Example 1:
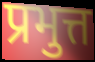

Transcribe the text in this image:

प्रभुत्त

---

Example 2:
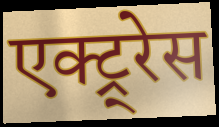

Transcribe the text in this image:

एक्ट्र्रेस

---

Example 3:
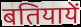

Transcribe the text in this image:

बतियायें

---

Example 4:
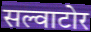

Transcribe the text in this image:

सल्वाटोर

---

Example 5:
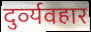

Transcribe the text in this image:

दुर्व्‍यवहार